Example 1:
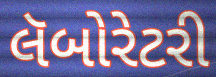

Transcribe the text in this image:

લૅબોરેટરી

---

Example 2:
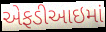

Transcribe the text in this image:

એફડીઆઇમાં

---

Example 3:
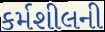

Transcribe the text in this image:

કર્મશીલની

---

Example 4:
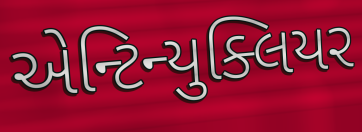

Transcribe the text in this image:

એન્ટિન્યુક્લિયર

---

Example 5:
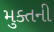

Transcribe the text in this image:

મુક્તની